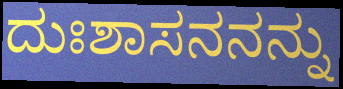
ದುಃಶಾಸನನನ್ನು